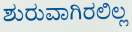
ಶುರುವಾಗಿರಲಿಲ್ಲ